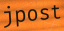
jpost